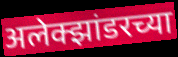
अलेक्झांडरच्या